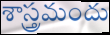
శాస్త్రమందు